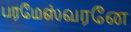
பரமேஸ்வரனே